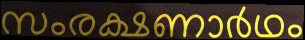
സംരക്ഷണാർഥം